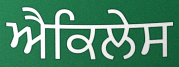
ਐਕਿਲੇਸ